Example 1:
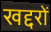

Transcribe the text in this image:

खद्दरों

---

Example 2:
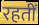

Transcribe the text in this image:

रहतीं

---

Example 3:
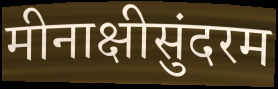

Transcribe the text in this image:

मीनाक्षीसुंदरम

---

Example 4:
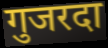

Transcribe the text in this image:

गुजरदा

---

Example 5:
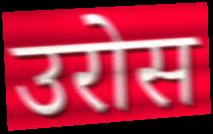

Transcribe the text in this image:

उरोस